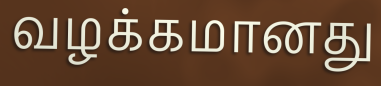
வழக்கமானது